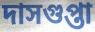
দাসগুপ্তা